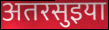
अतरसुइया